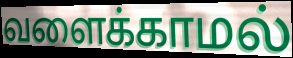
வளைக்காமல்